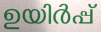
ഉയിർപ്പ്